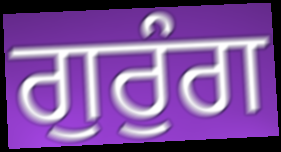
ਗੁਰੁੰਗ